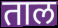
ताल